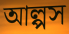
আল্পস